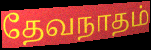
தேவநாதம்